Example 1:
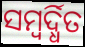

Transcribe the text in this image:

ସମ୍ବର୍ଦ୍ଧିତ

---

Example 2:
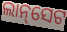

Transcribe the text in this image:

ଲାନ୍‌ସେଟ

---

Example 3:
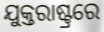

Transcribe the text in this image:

ଯୁକ୍ତରାଷ୍ଟ୍ରରେ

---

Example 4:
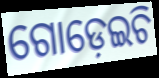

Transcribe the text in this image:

ଗୋଡ଼େଇଚି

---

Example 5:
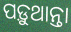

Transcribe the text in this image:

ପଡ଼ୁଥାନ୍ତା